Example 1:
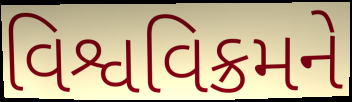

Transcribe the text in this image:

વિશ્વવિક્રમને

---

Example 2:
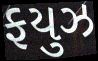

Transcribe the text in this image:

ફયુઝ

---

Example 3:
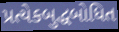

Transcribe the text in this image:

પ્રત્યેકબુદ્ધબોધિત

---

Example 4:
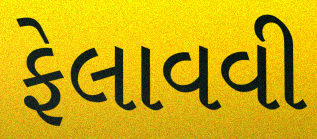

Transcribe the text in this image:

ફેલાવવી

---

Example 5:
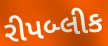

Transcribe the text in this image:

રીપબ્લીક